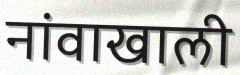
नांवाखाली